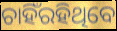
ଚାହିଁରହିଥିବେ